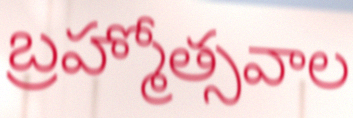
బ్రహ్మోత్సవాల